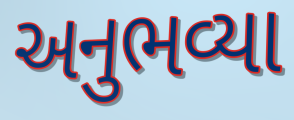
અનુભવ્યા